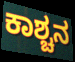
ಕಾಶ್ಚನ